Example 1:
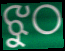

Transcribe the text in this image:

ଝୁଠ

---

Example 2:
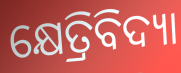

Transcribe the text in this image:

କ୍ଷେତ୍ରିବିଦ୍ୟା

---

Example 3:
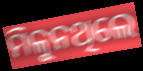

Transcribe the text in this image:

ମିଳୁନଥିଲେ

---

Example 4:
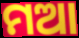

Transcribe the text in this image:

ମଆ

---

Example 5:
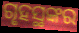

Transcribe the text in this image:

ଗୃହସ୍ଥଙ୍କର